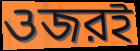
ওজরই